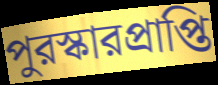
পুরস্কারপ্রাপ্তি